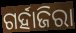
ଗର୍ହାଜିରା